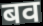
बव